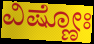
ವಿಷ್ಣೋಃ